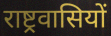
राष्ट्रवासियों